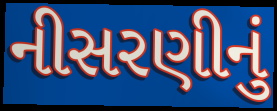
નીસરણીનું